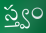
స్త్వం